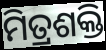
ମିତ୍ରଶକ୍ତି